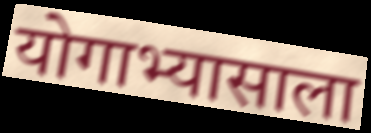
योगाभ्यासाला